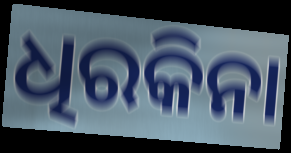
ଧିରକିନା